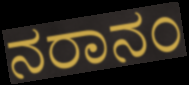
ನರಾನಂ